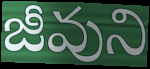
జీవుని